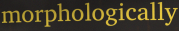
morphologically